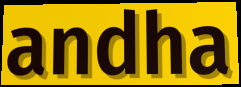
andha